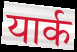
यार्क